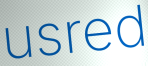
usred